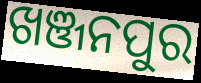
ଖଞ୍ଜନପୁର